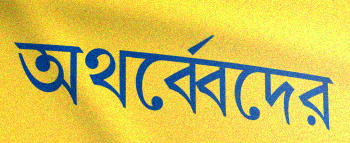
অথর্ব্বেদের